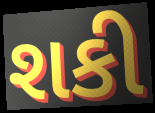
શકી